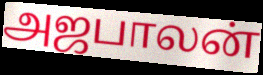
அஜபாலன்